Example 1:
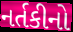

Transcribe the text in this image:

નર્તકીનો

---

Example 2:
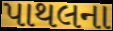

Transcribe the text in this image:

પાથલના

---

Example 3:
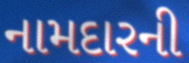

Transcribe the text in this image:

નામદારની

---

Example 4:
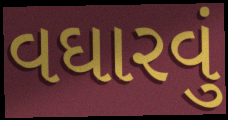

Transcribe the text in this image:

વઘારવું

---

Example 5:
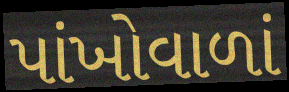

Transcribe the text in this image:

પાંખોવાળાં